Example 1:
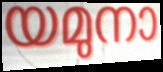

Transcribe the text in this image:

യമുനാ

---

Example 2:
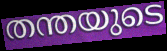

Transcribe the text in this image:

തന്തയുടെ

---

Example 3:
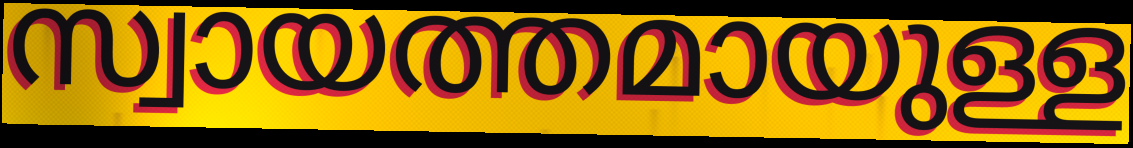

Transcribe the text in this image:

സ്വായത്തമായുള്ള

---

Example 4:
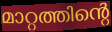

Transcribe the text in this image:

മാറ്റത്തിന്റെ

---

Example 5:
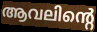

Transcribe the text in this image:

ആവലിന്റെ